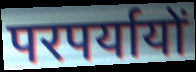
परपर्यायों